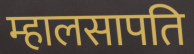
म्हालसापति